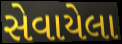
સેવાયેલા